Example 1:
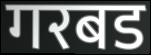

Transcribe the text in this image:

गरबड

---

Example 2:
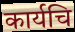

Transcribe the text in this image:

कार्यचि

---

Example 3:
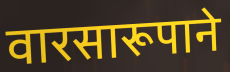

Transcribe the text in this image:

वारसारूपाने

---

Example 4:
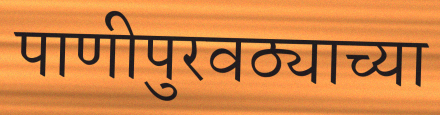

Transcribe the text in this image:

पाणीपुरवठ्याच्या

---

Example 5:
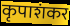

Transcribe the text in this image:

कृपाशंकर